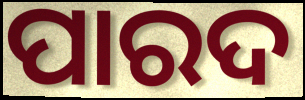
ପାରଦ